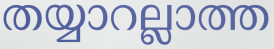
തയ്യാറല്ലാത്ത